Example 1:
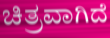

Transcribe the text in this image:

ಚಿತ್ರವಾಗಿದೆ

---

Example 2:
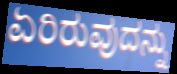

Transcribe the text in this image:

ಏರಿರುವುದನ್ನು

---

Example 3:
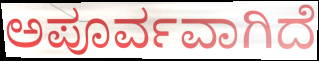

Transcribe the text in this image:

ಅಪೂರ್ವವಾಗಿದೆ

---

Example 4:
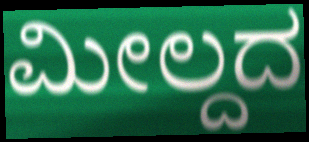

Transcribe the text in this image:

ಮೀಲ್ದದ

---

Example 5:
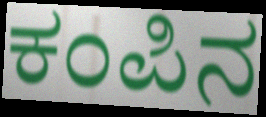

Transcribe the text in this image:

ಕಂಪಿನ